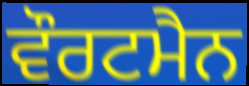
ਵੌਰਟਮੈਨ